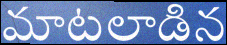
మాటలాడిన